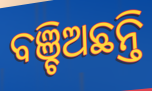
ବଞ୍ଚିଅଛନ୍ତି